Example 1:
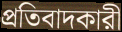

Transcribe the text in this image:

প্রতিবাদকারী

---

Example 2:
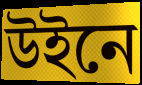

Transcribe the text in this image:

উইনে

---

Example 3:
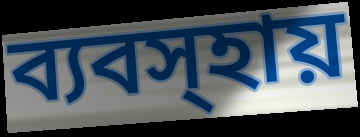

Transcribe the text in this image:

ব্যবস্হায়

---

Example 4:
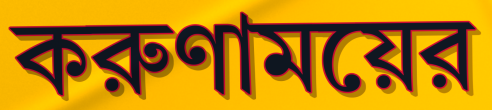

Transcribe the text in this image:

করুণাময়ের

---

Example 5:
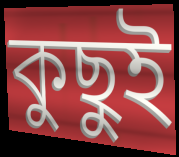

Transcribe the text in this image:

কুছুই